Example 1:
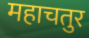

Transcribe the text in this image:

महाचतुर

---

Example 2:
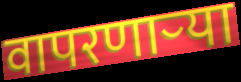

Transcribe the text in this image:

वापरणाऱ्या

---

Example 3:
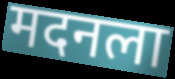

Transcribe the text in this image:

मदनला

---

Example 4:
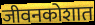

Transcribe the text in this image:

जीवनकोशात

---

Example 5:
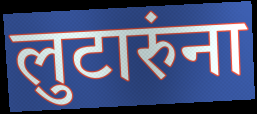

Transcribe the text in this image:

लुटारुंना